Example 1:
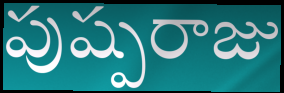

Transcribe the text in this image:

పుష్పరాజు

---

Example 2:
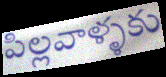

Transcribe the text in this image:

పిల్లవాళ్ళకు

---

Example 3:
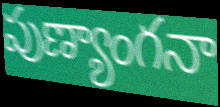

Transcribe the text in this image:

పుణ్యాంగనా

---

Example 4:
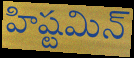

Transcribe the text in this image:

హిష్టమిన్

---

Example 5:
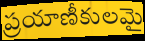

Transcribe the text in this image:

ప్రయాణీకులమై